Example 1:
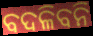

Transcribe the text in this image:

ବଦଳିବନି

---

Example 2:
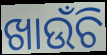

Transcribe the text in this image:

ଖାଉଁଚି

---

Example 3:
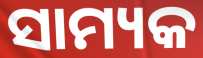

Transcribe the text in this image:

ସାମ୍ୟକ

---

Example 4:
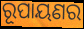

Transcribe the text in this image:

ରୂପାୟଣର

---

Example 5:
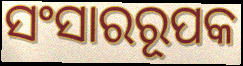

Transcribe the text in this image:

ସଂସାରରୂପକ